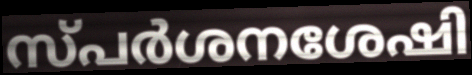
സ്പർശനശേഷി